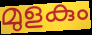
മുളകും